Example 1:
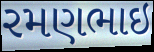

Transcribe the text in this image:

રમણભાઇ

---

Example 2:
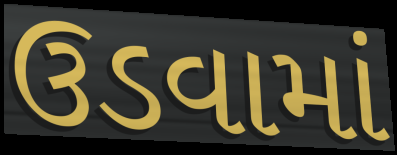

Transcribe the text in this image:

ઉડવામાં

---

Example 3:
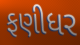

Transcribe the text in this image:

ફણીધર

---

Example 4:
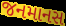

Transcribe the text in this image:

જનમાનસ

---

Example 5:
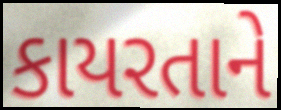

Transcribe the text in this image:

કાયરતાને